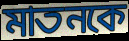
মাতনকে